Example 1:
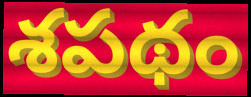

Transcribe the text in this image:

శపథం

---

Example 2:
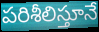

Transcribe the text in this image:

పరిశీలిస్తూనే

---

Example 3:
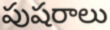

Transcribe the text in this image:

పుషరాలు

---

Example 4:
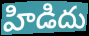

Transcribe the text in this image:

హిడిదు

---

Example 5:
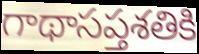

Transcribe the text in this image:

గాథాసప్తశతికి